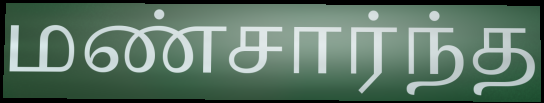
மண்சார்ந்த